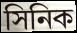
সিনিক